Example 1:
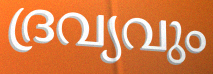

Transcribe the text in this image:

ദ്രവ്യവും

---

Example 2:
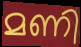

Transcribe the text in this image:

മണി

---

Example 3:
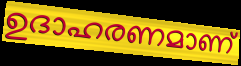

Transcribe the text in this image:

ഉദാഹരണമാണ്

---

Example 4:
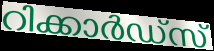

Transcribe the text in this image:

റിക്കാർഡ്സ്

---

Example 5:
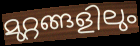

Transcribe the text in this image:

മുറ്റങ്ങളിലും